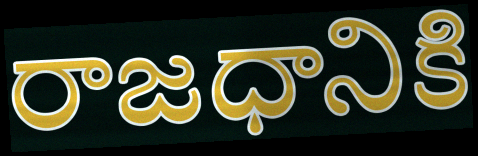
రాజధానికి